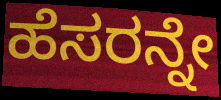
ಹೆಸರನ್ನೇ